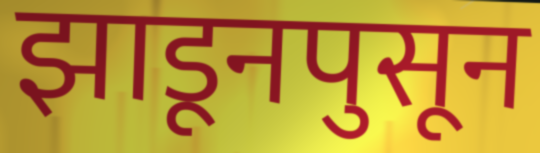
झाडूनपुसून